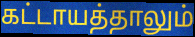
கட்டாயத்தாலும்